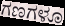
ಗಣಗಳೂ